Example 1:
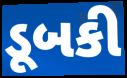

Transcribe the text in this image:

ડૂબકી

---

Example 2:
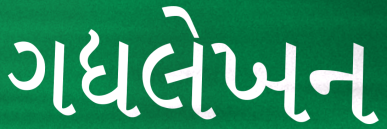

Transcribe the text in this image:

ગદ્યલેખન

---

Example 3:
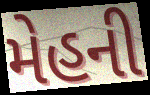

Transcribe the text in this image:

મેહની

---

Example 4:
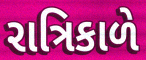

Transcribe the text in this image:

રાત્રિકાળે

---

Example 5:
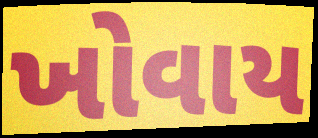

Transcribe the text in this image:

ખોવાય